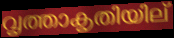
വൃത്താകൃതിയില്